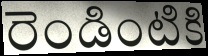
రెండింటికి